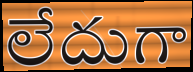
లేదుగా